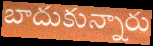
బాదుకున్నారు